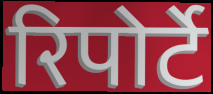
रिपोर्टे